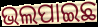
ଭଲପାଇଛ